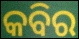
କବିର